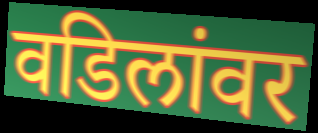
वडिलांवर